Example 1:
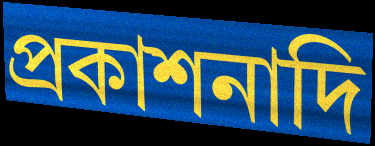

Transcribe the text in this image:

প্রকাশনাদি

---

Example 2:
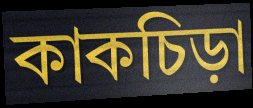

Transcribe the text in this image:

কাকচিড়া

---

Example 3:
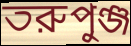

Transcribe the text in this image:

তরুপুঞ্জ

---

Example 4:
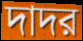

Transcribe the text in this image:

দাদর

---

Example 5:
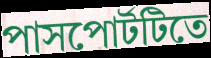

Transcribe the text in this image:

পাসপোর্টটিতে